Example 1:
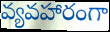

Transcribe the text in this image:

వ్యవహారంగా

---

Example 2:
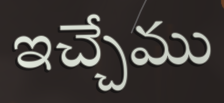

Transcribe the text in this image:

ఇచ్చేము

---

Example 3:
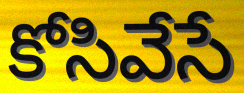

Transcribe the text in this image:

కోసివేసే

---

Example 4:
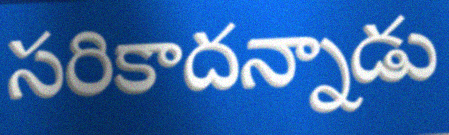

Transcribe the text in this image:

సరికాదన్నాడు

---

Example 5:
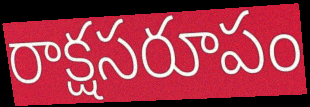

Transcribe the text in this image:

రాక్షసరూపం